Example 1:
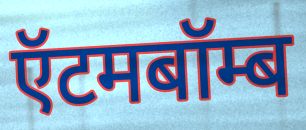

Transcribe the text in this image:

ऍटमबॉम्ब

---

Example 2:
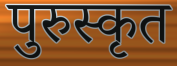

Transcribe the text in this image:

पुरुस्कृत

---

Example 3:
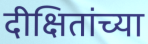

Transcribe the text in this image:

दीक्षितांच्या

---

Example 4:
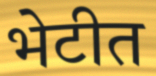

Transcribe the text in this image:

भेटीत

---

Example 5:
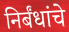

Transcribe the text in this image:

निर्बंधांचे